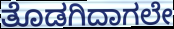
ತೊಡಗಿದಾಗಲೇ